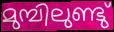
മുമ്പിലുണ്ടു്